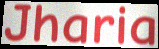
Jharia